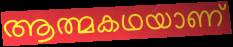
ആത്മകഥയാണ്